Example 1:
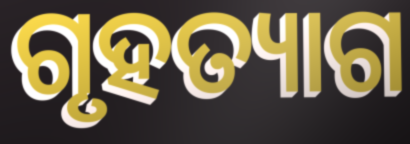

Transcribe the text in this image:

ଗୃହତ୍ୟାଗ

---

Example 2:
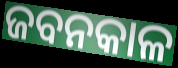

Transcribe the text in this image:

ଜବନକାଳ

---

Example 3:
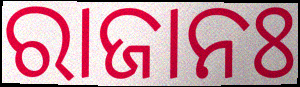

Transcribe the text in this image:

ରାଜାନଃ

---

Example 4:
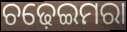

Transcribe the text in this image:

ଚଢ଼େଇମରା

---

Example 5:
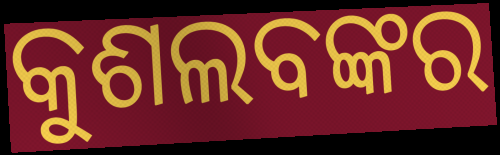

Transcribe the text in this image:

କୁଶଲବଙ୍କର